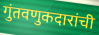
गुंतवणुकदारांची